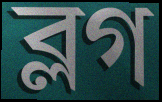
ব্লগ